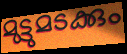
മുട്ടുമടക്കും